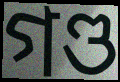
গণ্ড